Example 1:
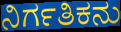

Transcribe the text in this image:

ನಿರ್ಗತಿಕನು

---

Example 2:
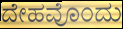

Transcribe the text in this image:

ದೇಹವೊಂದು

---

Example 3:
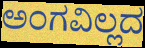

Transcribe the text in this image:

ಅಂಗವಿಲ್ಲದ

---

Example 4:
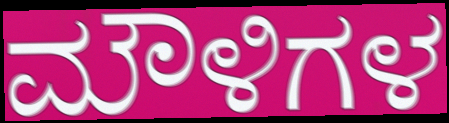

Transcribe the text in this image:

ಮೌಳಿಗಳ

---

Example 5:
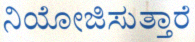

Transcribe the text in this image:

ನಿಯೋಜಿಸುತ್ತಾರೆ